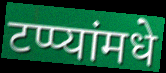
टप्प्यांमधे